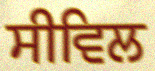
ਸੀਵਿਲ